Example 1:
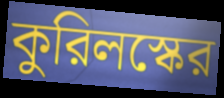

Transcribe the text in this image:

কুরিলস্কের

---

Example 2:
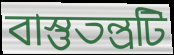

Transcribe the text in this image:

বাস্তুতন্ত্রটি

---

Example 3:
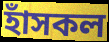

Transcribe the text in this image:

হাঁসকল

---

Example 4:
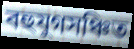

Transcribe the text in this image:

বহুযুগসঞ্চিত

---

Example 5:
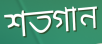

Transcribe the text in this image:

শতগান